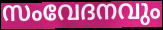
സംവേദനവും